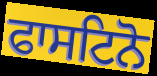
ਫਾਸਟਿਨੋ